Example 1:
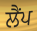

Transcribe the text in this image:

ਲੈਂਪ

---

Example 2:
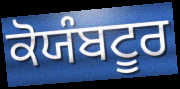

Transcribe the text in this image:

ਕੋਯੰਬਟੂਰ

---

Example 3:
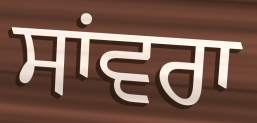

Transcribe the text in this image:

ਸਾਂਵਰਾ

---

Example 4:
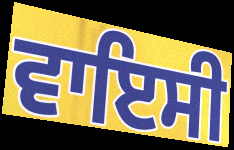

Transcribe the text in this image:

ਵਾਇਸੀ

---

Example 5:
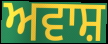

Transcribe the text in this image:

ਅਵਾਸ਼